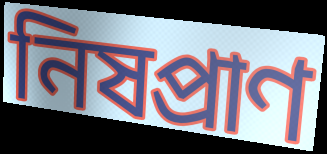
নিষপ্রাণ